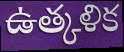
ఉత్కళిక